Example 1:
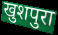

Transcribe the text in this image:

खुशपुरा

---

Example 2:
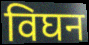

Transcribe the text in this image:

विघन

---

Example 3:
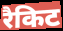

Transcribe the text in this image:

रैकिट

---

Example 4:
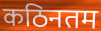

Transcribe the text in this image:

कठिनतम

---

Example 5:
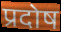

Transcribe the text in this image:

प्रदोष